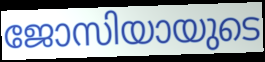
ജോസിയായുടെ